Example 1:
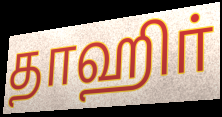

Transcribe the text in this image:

தாஹிர்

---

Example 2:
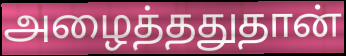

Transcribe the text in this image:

அழைத்ததுதான்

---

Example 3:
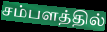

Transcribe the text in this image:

சம்பளத்தில்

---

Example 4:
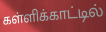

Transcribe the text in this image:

கள்ளிக்காட்டில்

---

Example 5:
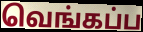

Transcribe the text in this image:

வெங்கப்ப